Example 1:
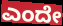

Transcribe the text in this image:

ಎಂದೇ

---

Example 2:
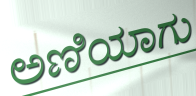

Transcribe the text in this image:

ಅಣಿಯಾಗು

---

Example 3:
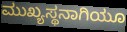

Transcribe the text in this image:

ಮುಖ್ಯಸ್ಥನಾಗಿಯೂ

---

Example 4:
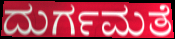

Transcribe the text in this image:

ದುರ್ಗಮತೆ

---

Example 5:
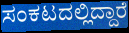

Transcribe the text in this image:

ಸಂಕಟದಲ್ಲಿದ್ದಾರೆ